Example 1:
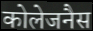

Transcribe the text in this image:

कोलेजनैस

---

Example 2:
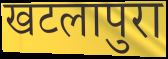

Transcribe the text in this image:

खटलापुरा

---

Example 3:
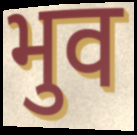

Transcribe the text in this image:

भुव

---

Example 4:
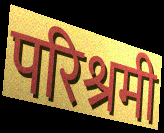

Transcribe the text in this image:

परिश्रमी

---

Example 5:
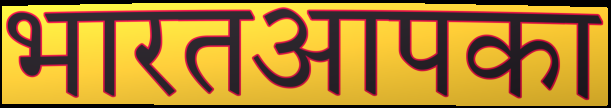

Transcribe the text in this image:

भारतआपका